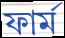
ফার্ম